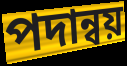
পদান্বয়